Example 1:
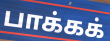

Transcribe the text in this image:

பாக்கக்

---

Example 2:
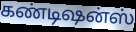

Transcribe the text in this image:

கண்டிஷன்ஸ்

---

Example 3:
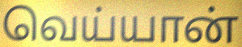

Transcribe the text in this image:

வெய்யான்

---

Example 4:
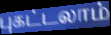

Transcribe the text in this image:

புகட்டலாம்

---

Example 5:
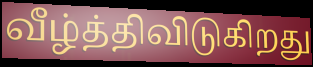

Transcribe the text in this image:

வீழ்த்திவிடுகிறது